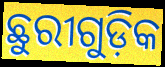
ଛୁରୀଗୁଡ଼ିକ